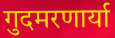
गुदमरणार्या